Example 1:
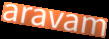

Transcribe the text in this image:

aravam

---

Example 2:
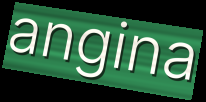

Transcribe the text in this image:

angina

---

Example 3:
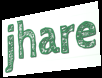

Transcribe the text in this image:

jhare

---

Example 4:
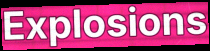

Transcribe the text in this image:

Explosions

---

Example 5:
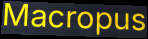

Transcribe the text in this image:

Macropus